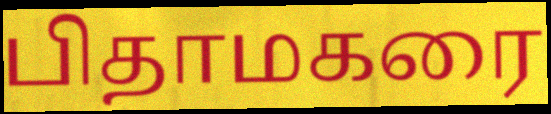
பிதாமகரை